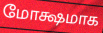
மோக்ஷமாக